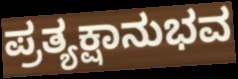
ಪ್ರತ್ಯಕ್ಷಾನುಭವ